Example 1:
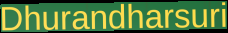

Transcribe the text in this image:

Dhurandharsuri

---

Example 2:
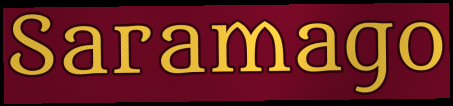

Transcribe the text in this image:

Saramago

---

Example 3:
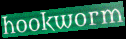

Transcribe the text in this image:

hookworm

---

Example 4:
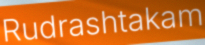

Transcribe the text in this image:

Rudrashtakam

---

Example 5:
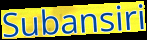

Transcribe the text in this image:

Subansiri